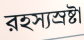
রহস্যস্রষ্টা